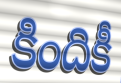
కిందికీ